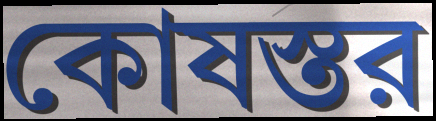
কোষস্তর